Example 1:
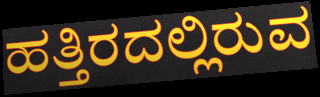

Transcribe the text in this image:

ಹತ್ತಿರದಲ್ಲಿರುವ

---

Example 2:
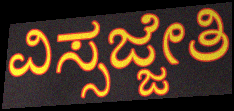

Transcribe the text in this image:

ವಿಸ್ಸಜ್ಜೇತಿ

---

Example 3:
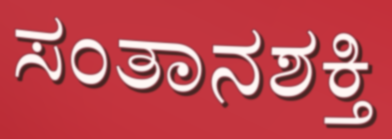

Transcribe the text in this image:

ಸಂತಾನಶಕ್ತಿ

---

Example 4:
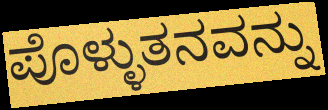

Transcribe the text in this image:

ಪೊಳ್ಳುತನವನ್ನು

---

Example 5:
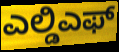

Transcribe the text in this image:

ಎಲ್ಡಿಎಫ್